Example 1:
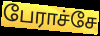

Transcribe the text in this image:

பேராச்சே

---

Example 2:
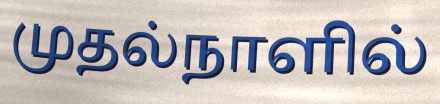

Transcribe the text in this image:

முதல்நாளில்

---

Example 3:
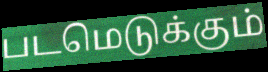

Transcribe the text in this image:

படமெடுக்கும்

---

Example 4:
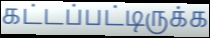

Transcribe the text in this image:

கட்டப்பட்டிருக்க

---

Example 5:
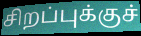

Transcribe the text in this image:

சிறப்புக்குச்